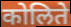
कोलिते